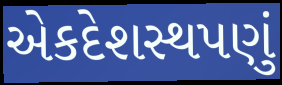
એકદેશસ્થપણું